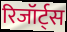
रिजॉर्ट्स